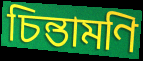
চিন্তামণি